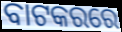
ବାଟକରରେ